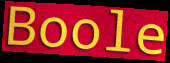
Boole